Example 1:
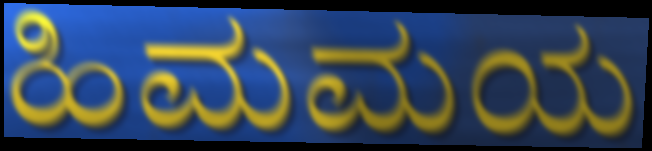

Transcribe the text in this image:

ಹಿಮಮಯ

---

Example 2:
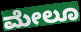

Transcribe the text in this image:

ಮೇಲೂ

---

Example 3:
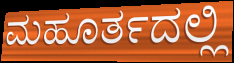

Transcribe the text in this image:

ಮಹೂರ್ತದಲ್ಲಿ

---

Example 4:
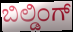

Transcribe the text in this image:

ಬಿಲ್ಡಿಂಗ್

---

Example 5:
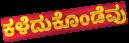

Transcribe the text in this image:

ಕಳೆದುಕೊಂಡೆವು